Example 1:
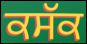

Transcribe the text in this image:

ਕਸੱਕ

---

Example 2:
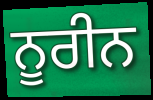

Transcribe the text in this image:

ਨੂਰੀਨ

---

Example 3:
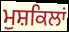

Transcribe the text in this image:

ਮੁਸ਼ਕਿਲਾਂ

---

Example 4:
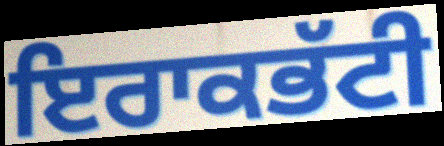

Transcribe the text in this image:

ਇਰਾਕਭੱਟੀ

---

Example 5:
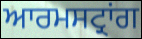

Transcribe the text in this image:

ਆਰਮਸਟ੍ਰਾਂਗ